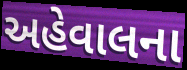
અહેવાલના